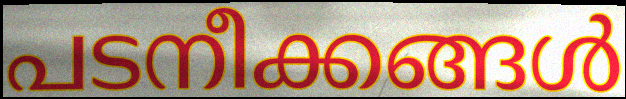
പടനീക്കങ്ങൾ